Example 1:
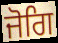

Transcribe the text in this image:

ਜੋਗਿ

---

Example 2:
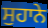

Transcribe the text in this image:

ਸੁਹਾਨੇ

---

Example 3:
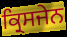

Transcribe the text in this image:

ਕ੍ਰਿਸਜੇਨ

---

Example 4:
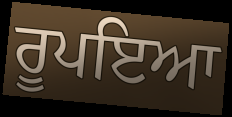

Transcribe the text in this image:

ਰੂਪਇਆ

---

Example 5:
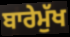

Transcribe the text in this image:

ਬਾਰੇਮੁੱਖ